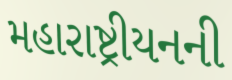
મહારાષ્ટ્રીયનની